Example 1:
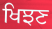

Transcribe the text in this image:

ਖਿਝਣ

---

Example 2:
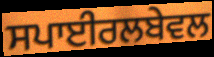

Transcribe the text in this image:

ਸਪਾਈਰਲਬੇਵਲ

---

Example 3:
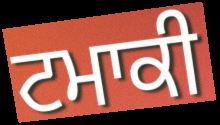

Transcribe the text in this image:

ਟਮਾਕੀ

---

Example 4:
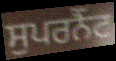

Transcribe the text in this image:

ਸੁਪਰਨੈੱਟ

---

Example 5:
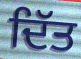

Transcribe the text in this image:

ਦਿੱਤ